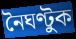
নৈঘণ্টুক